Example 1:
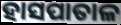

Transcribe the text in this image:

ହାସପାତାଳ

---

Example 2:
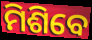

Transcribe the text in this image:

ମିଶିବେ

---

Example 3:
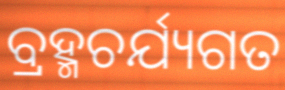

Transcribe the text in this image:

ବ୍ରହ୍ମଚର୍ଯ୍ୟଗତ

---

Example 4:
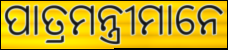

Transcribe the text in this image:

ପାତ୍ରମନ୍ତ୍ରୀମାନେ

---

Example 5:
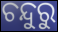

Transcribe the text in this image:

ଚନ୍ଦୁରୁ